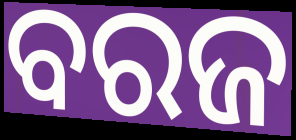
ବରଜ